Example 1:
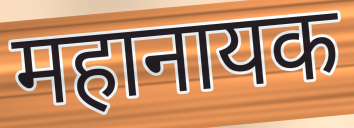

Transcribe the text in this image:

महानायक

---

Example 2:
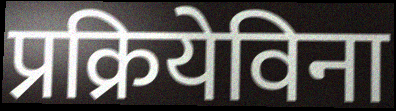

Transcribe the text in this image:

प्रक्रियेविना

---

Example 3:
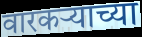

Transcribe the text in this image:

वारकऱ्याच्या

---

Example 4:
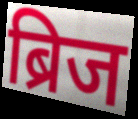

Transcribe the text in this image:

ब्रिज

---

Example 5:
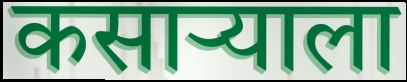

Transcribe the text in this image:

कसाऱ्याला